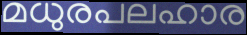
മധുരപലഹാര